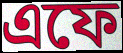
এফে